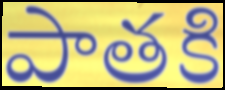
పాతకి